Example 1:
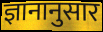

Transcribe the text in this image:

ज्ञानानुसार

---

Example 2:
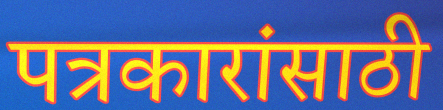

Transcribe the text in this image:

पत्रकारांसाठी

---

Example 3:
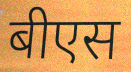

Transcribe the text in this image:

बीएस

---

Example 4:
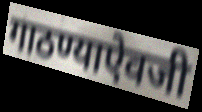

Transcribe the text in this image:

गाठण्याऐवजी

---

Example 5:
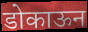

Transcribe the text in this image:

डोकाऊन